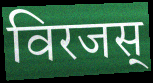
विरजस्